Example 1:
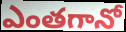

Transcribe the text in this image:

ఎంతగానో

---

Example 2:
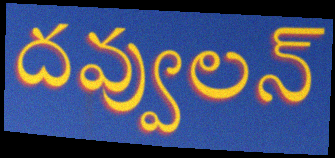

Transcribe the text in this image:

దవ్వులన్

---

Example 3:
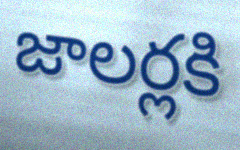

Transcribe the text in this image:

జాలర్లకి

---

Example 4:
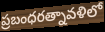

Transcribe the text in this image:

ప్రబంధరత్నావళిలో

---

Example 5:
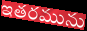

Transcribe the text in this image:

ఇతరమును